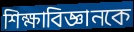
শিক্ষাবিজ্ঞানকে